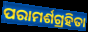
ପରାମର୍ଶଗ୍ରହିତା